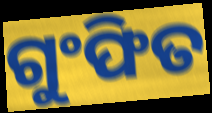
ଗୁଂଫିତ